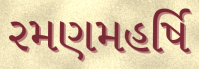
રમણમહર્ષિ